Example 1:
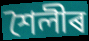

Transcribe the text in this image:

শৈলীৰ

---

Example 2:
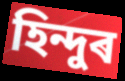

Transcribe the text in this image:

হিন্দুৰ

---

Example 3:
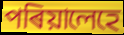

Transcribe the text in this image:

পৰিয়ালেহে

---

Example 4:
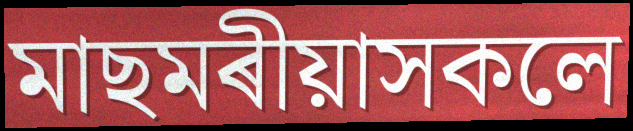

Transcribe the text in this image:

মাছমৰীয়াসকলে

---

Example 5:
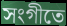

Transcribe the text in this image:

সংগীতে